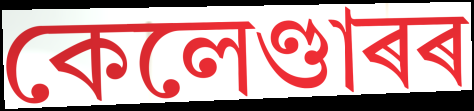
কেলেণ্ডাৰৰ